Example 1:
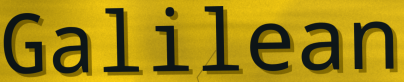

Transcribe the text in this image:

Galilean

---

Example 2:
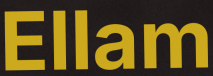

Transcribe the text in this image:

Ellam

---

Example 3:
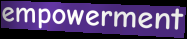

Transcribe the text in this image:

empowerment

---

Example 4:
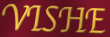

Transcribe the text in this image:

VISHE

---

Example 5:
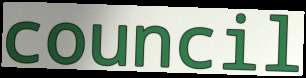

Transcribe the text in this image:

council